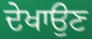
ਦੇਖਾਉਣ